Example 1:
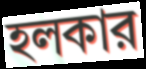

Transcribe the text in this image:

হলকার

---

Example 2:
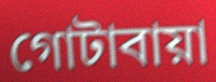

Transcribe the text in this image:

গোটাবায়া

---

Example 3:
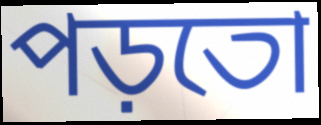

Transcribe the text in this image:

পড়তো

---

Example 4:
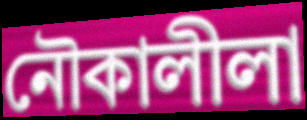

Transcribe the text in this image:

নৌকালীলা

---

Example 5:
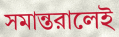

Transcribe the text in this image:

সমান্তরালেই